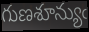
గుణశూన్యుఁ